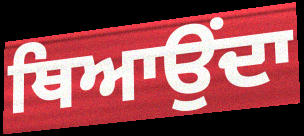
ਥਿਆਉਂਦਾ